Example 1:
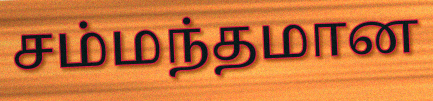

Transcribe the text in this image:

சம்மந்தமான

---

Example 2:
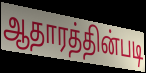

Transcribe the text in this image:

ஆதாரத்தின்படி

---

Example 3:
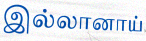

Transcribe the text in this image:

இல்லானாய்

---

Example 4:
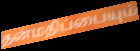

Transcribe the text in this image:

தன்மதிப்பையும்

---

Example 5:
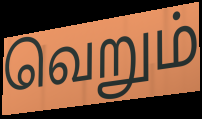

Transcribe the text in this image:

வெறும்